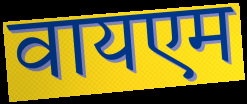
वायएम